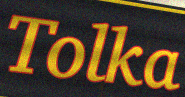
Tolka